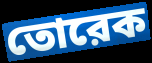
তোরেক